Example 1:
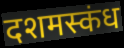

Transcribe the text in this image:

दशमस्कंध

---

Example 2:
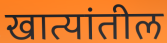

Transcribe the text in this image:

खात्यांतील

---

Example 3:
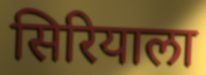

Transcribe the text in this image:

सिरियाला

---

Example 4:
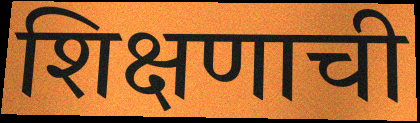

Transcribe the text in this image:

शिक्षणाची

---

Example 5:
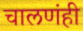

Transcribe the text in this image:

चालणंही